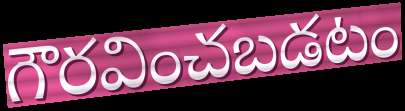
గౌరవించబడటం